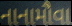
નાનામૌવા